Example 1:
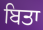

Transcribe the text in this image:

ਬਿਤਾ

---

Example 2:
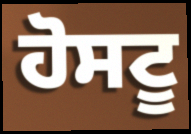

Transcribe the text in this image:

ਹੋਸਟੂ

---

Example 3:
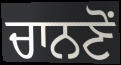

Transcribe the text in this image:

ਚਾਨਣੋਂ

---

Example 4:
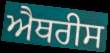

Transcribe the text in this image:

ਐਥਰੀਸ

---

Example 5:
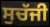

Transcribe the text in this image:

ਸੁਚੱਜੀ